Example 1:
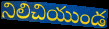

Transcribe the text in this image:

నిలిచియుండ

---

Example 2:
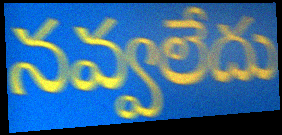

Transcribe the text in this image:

నవ్వలేదు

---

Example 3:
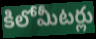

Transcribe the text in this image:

కిలోమీటర్లు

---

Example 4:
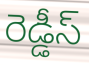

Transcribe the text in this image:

రెడ్డీస్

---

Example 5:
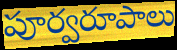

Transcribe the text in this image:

పూర్వరూపాలు